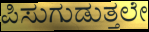
ಪಿಸುಗುಡುತ್ತಲೇ